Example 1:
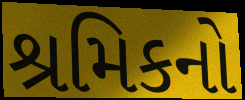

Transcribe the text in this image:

શ્રમિકનો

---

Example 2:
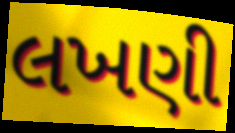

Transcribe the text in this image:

લખણી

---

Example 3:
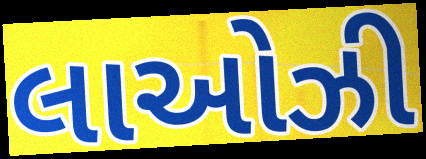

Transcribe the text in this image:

લાઓઝી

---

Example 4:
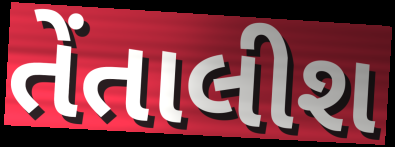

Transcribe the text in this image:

તેંતાલીશ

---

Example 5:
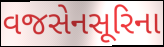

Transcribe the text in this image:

વજસેનસૂરિના